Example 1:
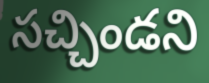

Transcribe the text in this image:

సచ్చిండని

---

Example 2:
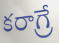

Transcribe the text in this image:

కరాగ్రే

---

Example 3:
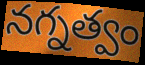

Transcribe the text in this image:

నగ్నత్వం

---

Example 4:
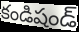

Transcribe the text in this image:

కండిషండ్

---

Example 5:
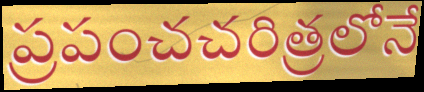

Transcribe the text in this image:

ప్రపంచచరిత్రలోనే